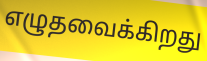
எழுதவைக்கிறது